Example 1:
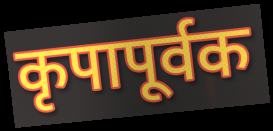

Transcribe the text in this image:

कृपापूर्वक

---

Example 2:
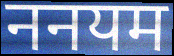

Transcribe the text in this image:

ननयम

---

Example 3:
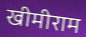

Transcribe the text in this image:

खीमीराम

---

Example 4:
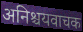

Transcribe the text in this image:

अनिश्चयवाचक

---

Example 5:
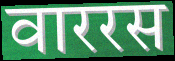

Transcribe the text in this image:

वाररस